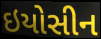
ઇયોસીન